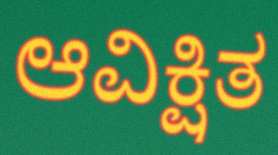
ಆವಿಕ್ಷಿತ